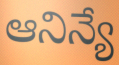
ఆనిన్యే